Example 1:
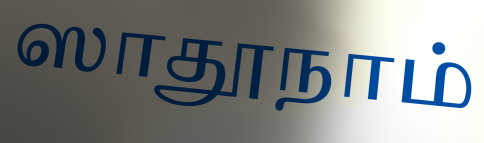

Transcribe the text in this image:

ஸாதூநாம்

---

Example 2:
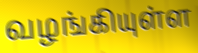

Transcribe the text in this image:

வழங்கியுள்ள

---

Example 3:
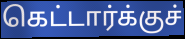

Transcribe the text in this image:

கெட்டார்க்குச்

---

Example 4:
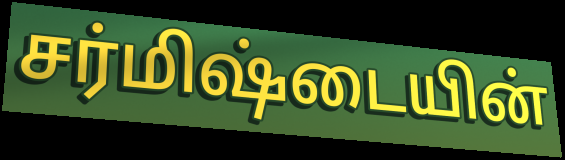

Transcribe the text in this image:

சர்மிஷ்டையின்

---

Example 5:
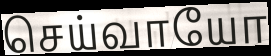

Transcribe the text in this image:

செய்வாயோ